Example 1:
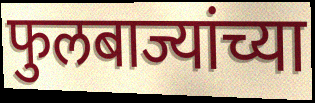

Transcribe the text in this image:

फुलबाज्यांच्या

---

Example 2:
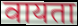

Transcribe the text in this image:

वायता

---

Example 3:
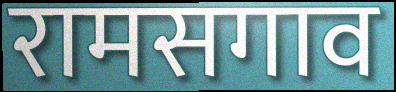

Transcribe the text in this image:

रामसगाव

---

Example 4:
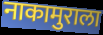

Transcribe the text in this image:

नाकामुराला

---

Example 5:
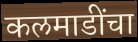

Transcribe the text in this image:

कलमाडींचा